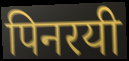
पिनरयी